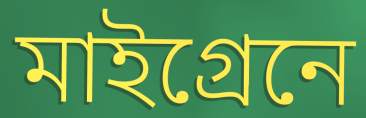
মাইগ্রেনে